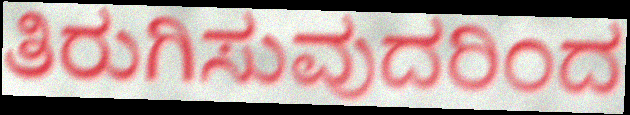
ತಿರುಗಿಸುವುದರಿಂದ